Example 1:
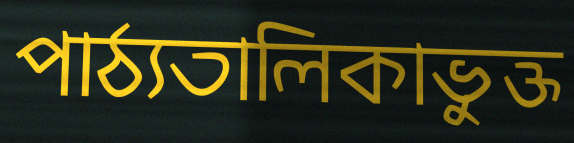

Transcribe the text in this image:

পাঠ্যতালিকাভুক্ত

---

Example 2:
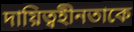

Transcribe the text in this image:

দায়িত্বহীনতাকে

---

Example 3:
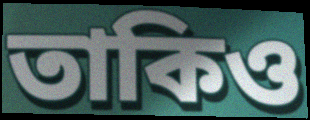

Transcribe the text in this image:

তাকিও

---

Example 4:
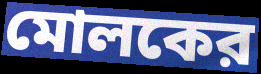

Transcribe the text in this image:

মোলকের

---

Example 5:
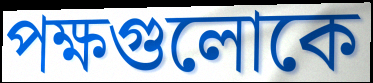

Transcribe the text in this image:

পক্ষগুলোকে